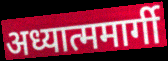
अध्यात्ममार्गी